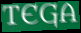
TEGA